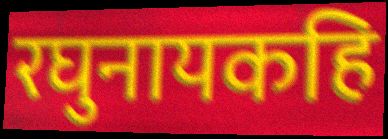
रघुनायकहि